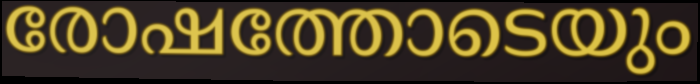
രോഷത്തോടെയും